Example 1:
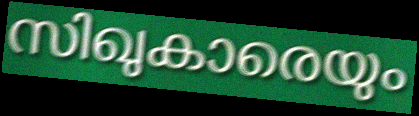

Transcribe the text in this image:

സിഖുകാരെയും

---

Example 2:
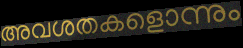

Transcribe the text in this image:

അവശതകളൊന്നും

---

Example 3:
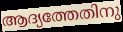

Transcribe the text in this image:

ആദ്യത്തേതിനു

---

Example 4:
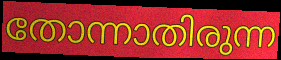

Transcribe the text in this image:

തോന്നാതിരുന്ന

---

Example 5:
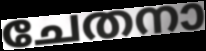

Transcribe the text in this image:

ചേതനാ